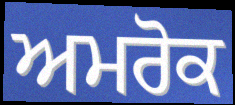
ਅਮਰੋਕ